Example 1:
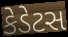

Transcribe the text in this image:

કેડેટસ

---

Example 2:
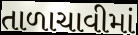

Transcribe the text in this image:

તાળાચાવીમાં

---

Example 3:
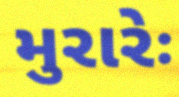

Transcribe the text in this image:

મુરારેઃ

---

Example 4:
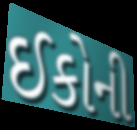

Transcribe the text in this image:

ઈકોની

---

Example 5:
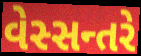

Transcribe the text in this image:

વેસ્સન્તરે